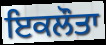
ਇਕਲੌਤਾ